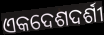
ଏକଦେଶଦର୍ଶୀ